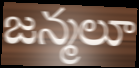
జన్మలూ